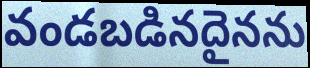
వండబడినదైనను